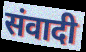
संवादी